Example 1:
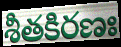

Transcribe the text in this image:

శీతకిరణః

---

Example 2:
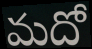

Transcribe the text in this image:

మదో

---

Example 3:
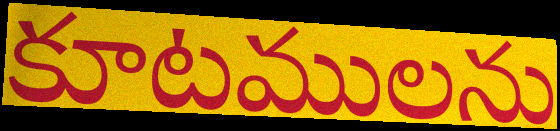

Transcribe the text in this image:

కూటములను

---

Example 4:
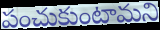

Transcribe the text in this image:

పంచుకుంటామని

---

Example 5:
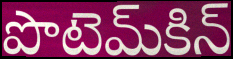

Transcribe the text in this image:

పొటెమ్‌కిన్